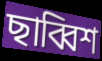
ছাব্বিশ